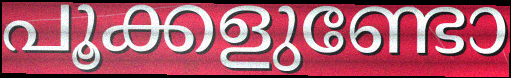
പൂക്കളുണ്ടോ